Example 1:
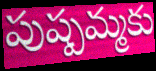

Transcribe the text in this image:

పుష్పమ్మకు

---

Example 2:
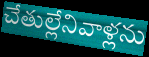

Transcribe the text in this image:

చేతుల్లేనివాళ్లను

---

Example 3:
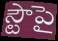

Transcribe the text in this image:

స్టౌపై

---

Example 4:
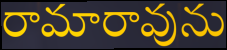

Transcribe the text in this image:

రామారావును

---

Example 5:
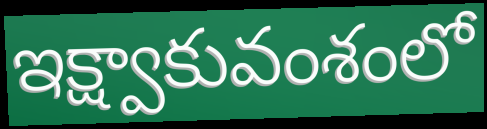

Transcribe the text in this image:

ఇక్ష్వాకువంశంలో